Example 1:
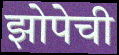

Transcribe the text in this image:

झोपेची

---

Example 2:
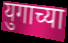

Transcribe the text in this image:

युगाच्या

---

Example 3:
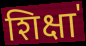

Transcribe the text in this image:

शिक्षा॑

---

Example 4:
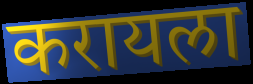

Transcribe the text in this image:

करायला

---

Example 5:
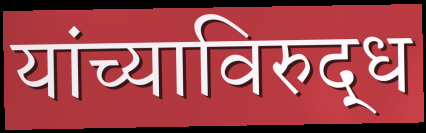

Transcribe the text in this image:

यांच्याविरुद्ध